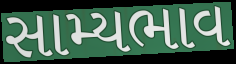
સામ્યભાવ